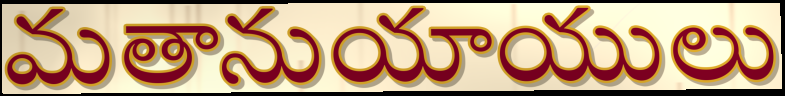
మతానుయాయులు